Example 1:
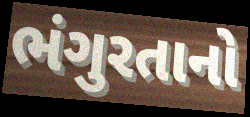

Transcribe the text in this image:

ભંગુરતાનો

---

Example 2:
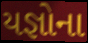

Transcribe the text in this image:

યજ્ઞોના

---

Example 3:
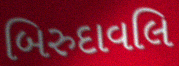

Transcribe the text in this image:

બિરુદાવલિ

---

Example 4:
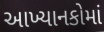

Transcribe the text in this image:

આખ્યાનકોમાં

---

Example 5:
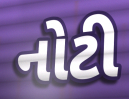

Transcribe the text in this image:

નોટી